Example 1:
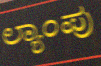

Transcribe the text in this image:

ಲ್ಯಾಂಪು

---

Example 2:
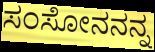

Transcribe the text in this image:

ಸಂಸೋನನನ್ನ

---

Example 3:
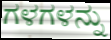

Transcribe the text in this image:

ಗಳಗಳನ್ನು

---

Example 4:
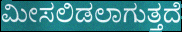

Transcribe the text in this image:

ಮೀಸಲಿಡಲಾಗುತ್ತದೆ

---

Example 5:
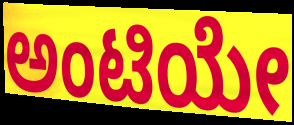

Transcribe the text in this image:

ಅಂಟಿಯೇ